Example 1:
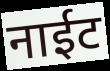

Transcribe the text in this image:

नाईट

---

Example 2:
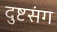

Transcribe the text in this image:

दुष्टसंग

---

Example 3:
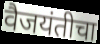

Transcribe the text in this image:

वैजयंतीचा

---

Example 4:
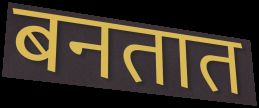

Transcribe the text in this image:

बनतात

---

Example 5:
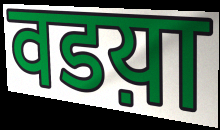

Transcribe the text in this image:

वडय़ा